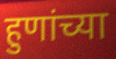
हुणांच्या